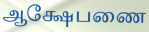
ஆக்ஷேபணை